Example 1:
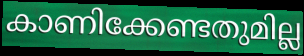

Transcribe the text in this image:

കാണിക്കേണ്ടതുമില്ല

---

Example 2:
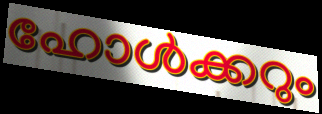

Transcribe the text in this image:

ഹോൾക്കറും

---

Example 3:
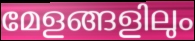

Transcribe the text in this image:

മേളങ്ങളിലും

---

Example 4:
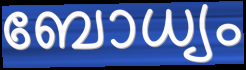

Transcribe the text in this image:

ബോധ്യം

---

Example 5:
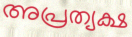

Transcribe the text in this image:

അപ്രത്യക്ഷ